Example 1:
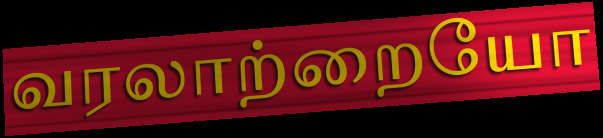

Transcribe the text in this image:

வரலாற்றையோ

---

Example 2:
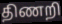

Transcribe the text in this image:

திணறி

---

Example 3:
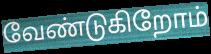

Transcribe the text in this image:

வேண்டுகிறோம்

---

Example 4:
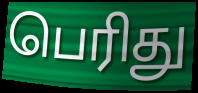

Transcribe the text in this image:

பெரிது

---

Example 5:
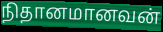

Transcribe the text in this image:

நிதானமானவன்